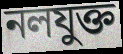
নলযুক্ত